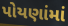
પોયણાંમાં